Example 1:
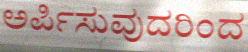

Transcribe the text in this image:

ಅರ್ಪಿಸುವುದರಿಂದ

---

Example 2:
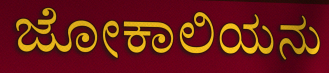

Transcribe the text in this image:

ಜೋಕಾಲಿಯನು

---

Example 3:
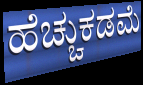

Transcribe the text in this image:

ಹೆಚ್ಚುಕಡಮೆ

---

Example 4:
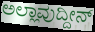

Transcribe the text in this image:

ಅಲ್ಲಾವುದ್ದೀನ್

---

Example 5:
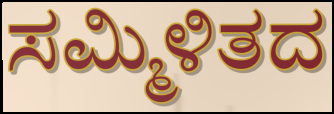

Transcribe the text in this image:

ಸಮ್ಮಿಳಿತದ